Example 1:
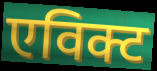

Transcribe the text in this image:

एविक्ट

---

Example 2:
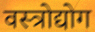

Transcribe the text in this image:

वस्त्रोद्योग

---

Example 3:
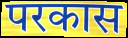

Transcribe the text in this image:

परकास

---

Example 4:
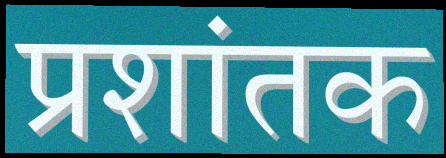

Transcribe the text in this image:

प्रशांतक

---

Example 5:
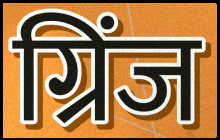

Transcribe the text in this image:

ग्रिंज